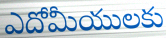
ఎదోమీయులకు